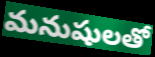
మనుషులతో